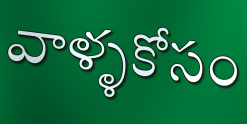
వాళ్ళకోసం